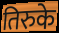
तिरुके